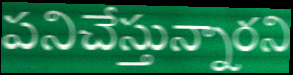
పనిచేస్తున్నారని